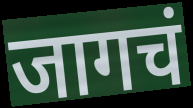
जागचं